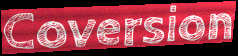
Coversion